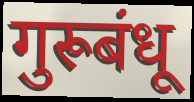
गुरूबंधू